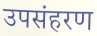
उपसंहरण